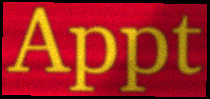
Appt